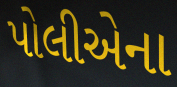
પોલીએના